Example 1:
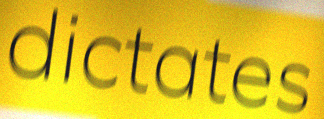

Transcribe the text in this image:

dictates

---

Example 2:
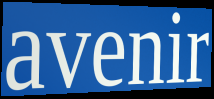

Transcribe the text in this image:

avenir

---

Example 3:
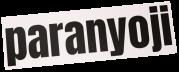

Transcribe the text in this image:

paranyoji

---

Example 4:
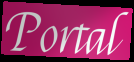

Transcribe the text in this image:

Portal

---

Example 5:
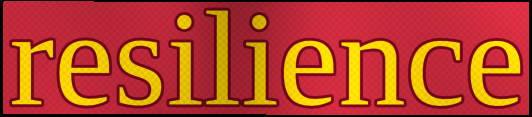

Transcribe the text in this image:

resilience